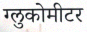
ग्लुकोमीटर